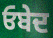
ਓਬੇਦ